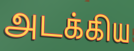
அடக்கிய